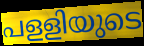
പളളിയുടെ